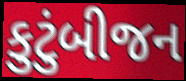
કુટુંબીજન